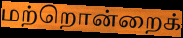
மற்றொன்றைக்